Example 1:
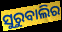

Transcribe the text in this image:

ସୁରୁବାଲିର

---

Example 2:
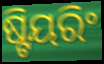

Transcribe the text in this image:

ଷ୍ଟିୟରିଂ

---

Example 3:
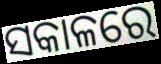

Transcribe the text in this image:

ସକାଳରେ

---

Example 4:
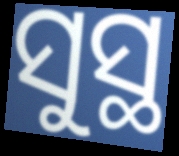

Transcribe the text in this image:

ସୁସ୍ଥ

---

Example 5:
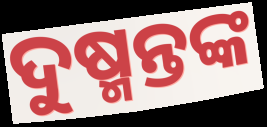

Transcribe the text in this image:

ଦୁଷ୍ମନ୍ତଙ୍କ